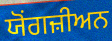
ਯੋਂਗਜ਼ੀਅਨ